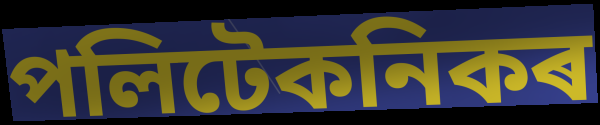
পলিটেকনিকৰ